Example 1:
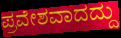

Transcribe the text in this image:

ಪ್ರವೇಶವಾದದ್ದು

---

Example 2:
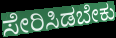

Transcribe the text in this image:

ಸೇರಿಸಿಡಬೇಕು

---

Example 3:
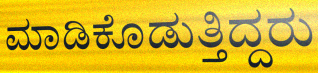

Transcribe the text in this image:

ಮಾಡಿಕೊಡುತ್ತಿದ್ದರು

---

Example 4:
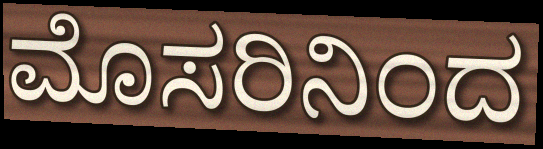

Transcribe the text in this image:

ಮೊಸರಿನಿಂದ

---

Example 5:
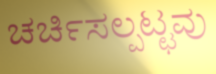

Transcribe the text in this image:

ಚರ್ಚಿಸಲ್ಪಟ್ಟವು